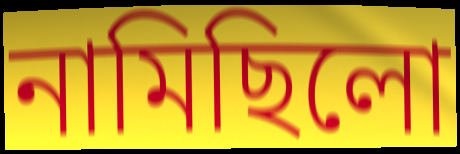
নামিছিলো